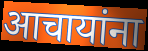
आचायांना